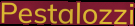
Pestalozzi